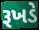
રૂખડે